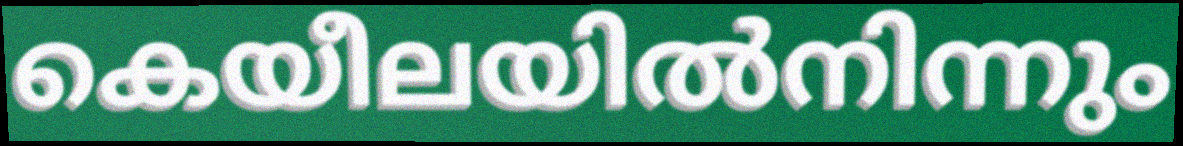
കെയീലയിൽനിന്നും